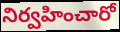
నిర్వహించారో